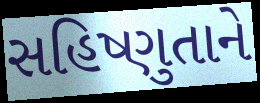
સહિષ્ણુતાને